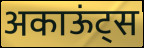
अकाऊंट्स